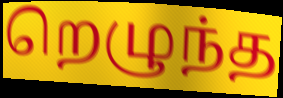
றெழுந்த